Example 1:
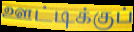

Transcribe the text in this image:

ஊட்டிக்குப்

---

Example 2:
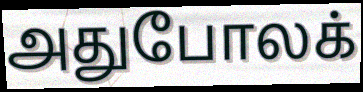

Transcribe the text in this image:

அதுபோலக்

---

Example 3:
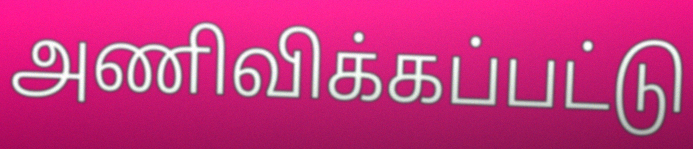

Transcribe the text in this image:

அணிவிக்கப்பட்டு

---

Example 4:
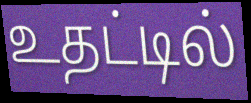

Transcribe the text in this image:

உதட்டில்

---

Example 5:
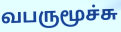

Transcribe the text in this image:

வபருமூச்சு